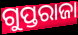
ଗୁପ୍ତରାଜା